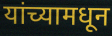
यांच्यामधून